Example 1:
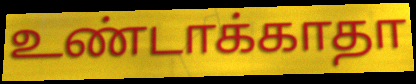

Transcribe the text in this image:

உண்டாக்காதா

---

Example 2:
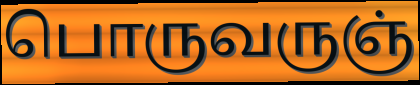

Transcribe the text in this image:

பொருவருஞ்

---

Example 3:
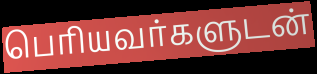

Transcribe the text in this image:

பெரியவர்களுடன்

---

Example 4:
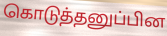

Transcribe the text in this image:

கொடுத்தனுப்பின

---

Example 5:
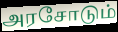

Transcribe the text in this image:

அரசோடும்